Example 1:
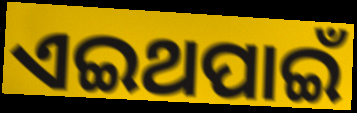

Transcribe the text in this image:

ଏଇଥପାଇଁ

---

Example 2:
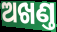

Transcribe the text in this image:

ଅଖଣ୍ତ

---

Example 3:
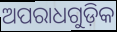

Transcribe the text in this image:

ଅପରାଧଗୁଡ଼ିକ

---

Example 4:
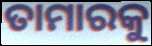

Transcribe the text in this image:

ତାମାରକୁ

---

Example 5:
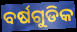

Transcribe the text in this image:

ବର୍ଷଗୁଡିକ